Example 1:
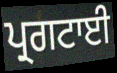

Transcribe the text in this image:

ਪ੍ਰ੍ਰਗਟਾਈ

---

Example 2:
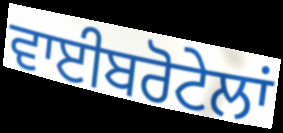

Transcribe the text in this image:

ਵਾਈਬਰੋਟੇਲਾਂ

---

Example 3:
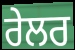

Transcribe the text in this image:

ਰੇਲਰ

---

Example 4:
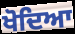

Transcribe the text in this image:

ਖੋਦਿਆ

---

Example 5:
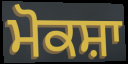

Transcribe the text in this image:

ਮੋਕਸ਼ਾ